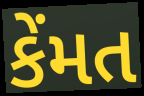
કેંમત